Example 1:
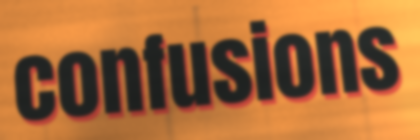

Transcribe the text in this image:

confusions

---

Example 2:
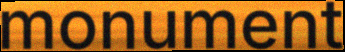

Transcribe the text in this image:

monument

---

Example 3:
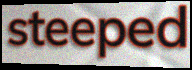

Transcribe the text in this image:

steeped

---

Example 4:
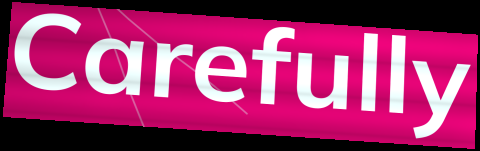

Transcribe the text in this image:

Carefully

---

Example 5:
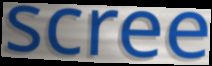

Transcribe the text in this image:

scree